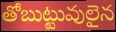
తోబుట్టువులైన